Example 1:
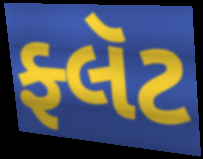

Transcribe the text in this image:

ફ્લૅટ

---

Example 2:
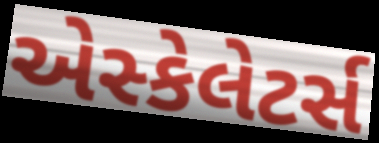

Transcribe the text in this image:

એસ્કેલેટર્સ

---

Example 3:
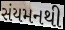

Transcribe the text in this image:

સંયમનથી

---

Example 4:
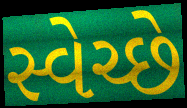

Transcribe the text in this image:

સ્વેચ્છે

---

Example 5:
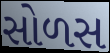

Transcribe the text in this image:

સોળસ